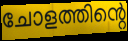
ചോളത്തിന്റെ